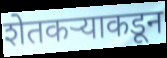
शेतकऱ्याकडून